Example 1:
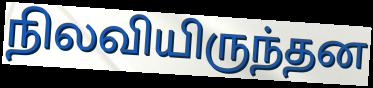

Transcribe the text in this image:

நிலவியிருந்தன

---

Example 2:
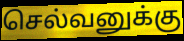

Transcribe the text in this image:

செல்வனுக்கு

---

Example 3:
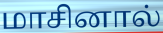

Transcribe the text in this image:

மாசினால்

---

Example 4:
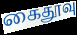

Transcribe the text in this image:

கைதூவு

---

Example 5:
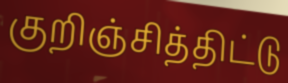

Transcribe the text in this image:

குறிஞ்சித்திட்டு